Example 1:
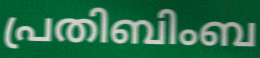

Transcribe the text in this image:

പ്രതിബിംബ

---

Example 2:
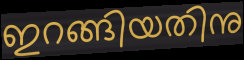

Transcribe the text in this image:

ഇറങ്ങിയതിനു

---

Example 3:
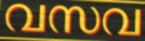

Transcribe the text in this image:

വസവ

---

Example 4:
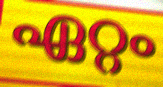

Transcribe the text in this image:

ഏറ്റം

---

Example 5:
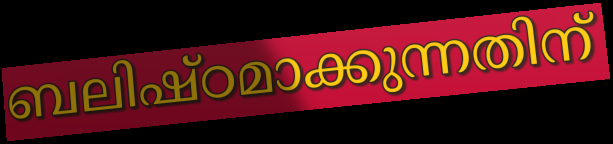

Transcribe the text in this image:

ബലിഷ്ഠമാക്കുന്നതിന്